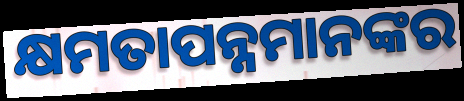
କ୍ଷମତାପନ୍ନମାନଙ୍କର